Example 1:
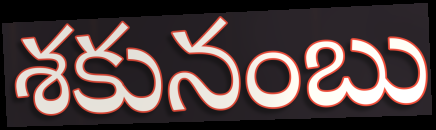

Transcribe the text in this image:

శకునంబు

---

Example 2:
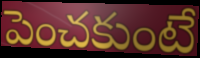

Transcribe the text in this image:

పెంచకుంటే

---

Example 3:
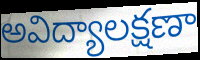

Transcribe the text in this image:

అవిద్యాలక్షణా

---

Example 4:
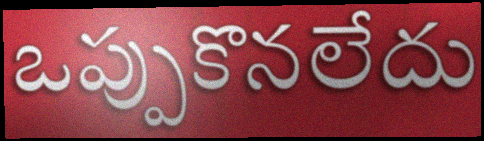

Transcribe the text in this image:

ఒప్పుకొనలేదు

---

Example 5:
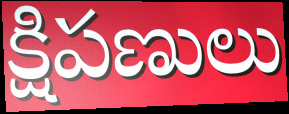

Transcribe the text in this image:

క్షిపణులు